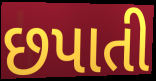
છપાતી